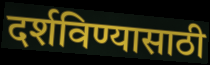
दर्शविण्यासाठी